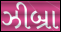
ઝીબ્રા